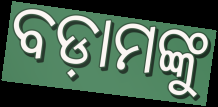
ବଡ଼ାମଙ୍କୁ